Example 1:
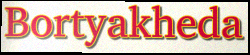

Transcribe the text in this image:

Bortyakheda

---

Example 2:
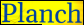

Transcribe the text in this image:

Planch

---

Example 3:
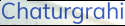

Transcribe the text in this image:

Chaturgrahi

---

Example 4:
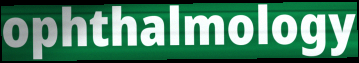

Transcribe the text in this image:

ophthalmology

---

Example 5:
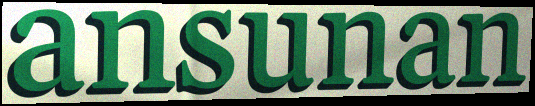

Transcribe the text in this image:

ansunan